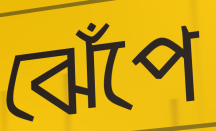
ঝেঁপে